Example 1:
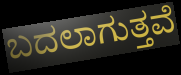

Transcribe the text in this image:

ಬದಲಾಗುತ್ತವೆ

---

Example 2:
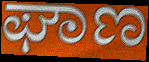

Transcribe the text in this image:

ಘಾಣ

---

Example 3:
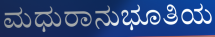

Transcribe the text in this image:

ಮಧುರಾನುಭೂತಿಯ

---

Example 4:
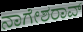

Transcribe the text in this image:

ನಾಗೇಶರಾವ್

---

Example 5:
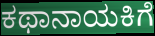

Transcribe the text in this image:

ಕಥಾನಾಯಕಿಗೆ